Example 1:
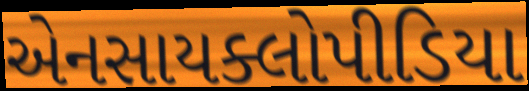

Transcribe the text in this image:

એનસાયક્લોપીડિયા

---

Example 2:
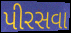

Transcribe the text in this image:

પીરસવા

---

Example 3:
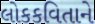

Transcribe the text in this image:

લોકકવિતાને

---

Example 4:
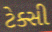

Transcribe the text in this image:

ટેક્સી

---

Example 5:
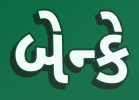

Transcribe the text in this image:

બેન્કે